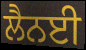
ਲੈਨਈ